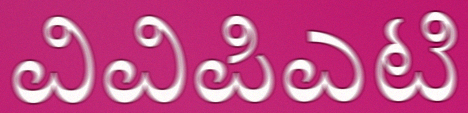
ವಿವಿಪಿಎಟಿ